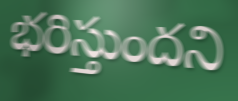
భరిస్తుందని